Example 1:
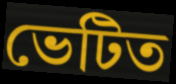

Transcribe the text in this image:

ভেটিত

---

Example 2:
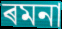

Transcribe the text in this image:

ৰমনা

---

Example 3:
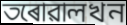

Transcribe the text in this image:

তৰোৱালখন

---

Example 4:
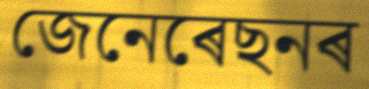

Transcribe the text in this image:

জেনেৰেছনৰ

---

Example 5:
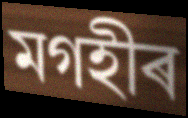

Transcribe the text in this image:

মগহীৰ